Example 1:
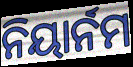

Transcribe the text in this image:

ନିୟାର୍ନମ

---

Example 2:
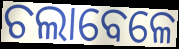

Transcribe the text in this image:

ଚଲାବେଳେ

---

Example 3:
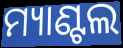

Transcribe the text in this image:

ମ୍ୟାଣ୍ଟଲ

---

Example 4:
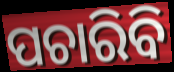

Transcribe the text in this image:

ପଚାରିବି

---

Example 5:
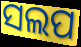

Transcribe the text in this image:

ସଲପ